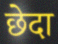
छेदा